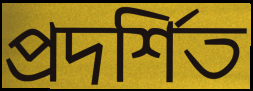
প্রদর্শিত